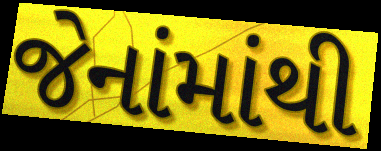
જેનાંમાંથી